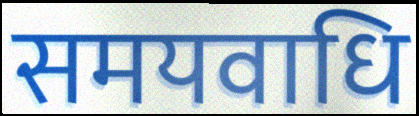
समयवाधि